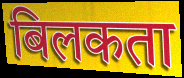
बिलकता